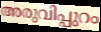
അരുവിപ്പുറം